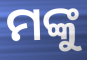
ମଙ୍କୁ